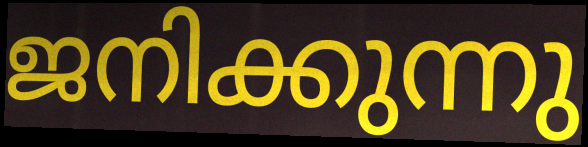
ജനിക്കുന്നു